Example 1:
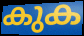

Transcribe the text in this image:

കുക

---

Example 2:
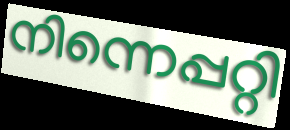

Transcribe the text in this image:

നിന്നെപ്പറ്റി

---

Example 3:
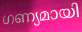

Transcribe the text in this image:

ഗണ്യമായി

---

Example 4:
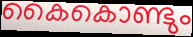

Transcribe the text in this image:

കൈകൊണ്ടും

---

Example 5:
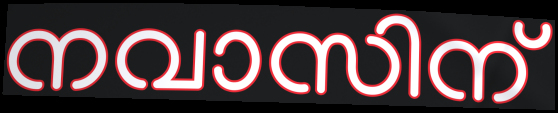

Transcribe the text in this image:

നവാസിന്